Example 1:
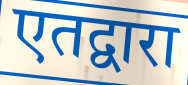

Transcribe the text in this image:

एतद्वारा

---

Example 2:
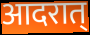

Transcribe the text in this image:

आदरात्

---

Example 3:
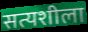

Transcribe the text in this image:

सत्यशीला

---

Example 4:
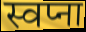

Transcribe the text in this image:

स्वप्ना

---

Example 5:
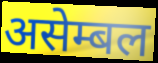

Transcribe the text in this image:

असेम्बल